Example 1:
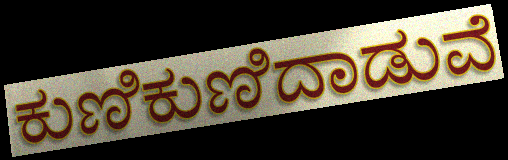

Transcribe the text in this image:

ಕುಣಿಕುಣಿದಾಡುವೆ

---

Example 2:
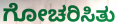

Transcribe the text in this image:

ಗೋಚರಿಸಿತು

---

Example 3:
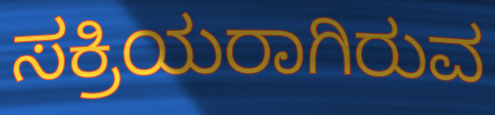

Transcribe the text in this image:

ಸಕ್ರಿಯರಾಗಿರುವ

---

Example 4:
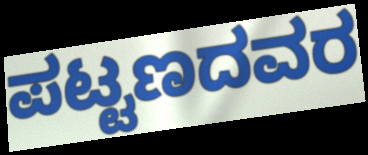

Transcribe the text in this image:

ಪಟ್ಟಣದವರ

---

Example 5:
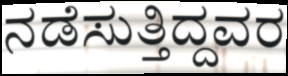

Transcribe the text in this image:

ನಡೆಸುತ್ತಿದ್ದವರ